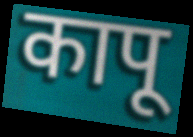
कापू